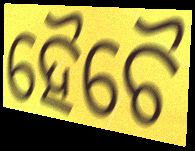
ହୈଚୈ